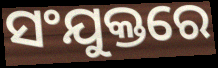
ସଂଯୁକ୍ତରେ